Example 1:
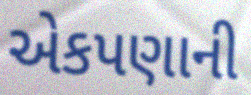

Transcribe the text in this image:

એકપણાની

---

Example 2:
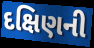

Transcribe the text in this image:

દક્ષિણની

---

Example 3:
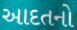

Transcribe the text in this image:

આદતનો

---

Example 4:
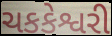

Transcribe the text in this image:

ચકકેશ્વરી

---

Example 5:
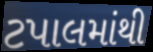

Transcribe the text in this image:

ટપાલમાંથી